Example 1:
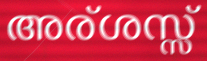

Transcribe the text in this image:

അര്ശസ്സ്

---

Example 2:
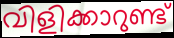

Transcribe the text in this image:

വിളിക്കാറുണ്ട്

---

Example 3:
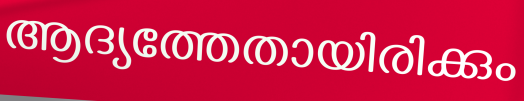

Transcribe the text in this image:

ആദ്യത്തേതായിരിക്കും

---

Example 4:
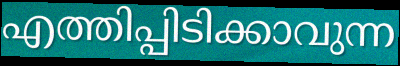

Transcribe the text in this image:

എത്തിപ്പിടിക്കാവുന്ന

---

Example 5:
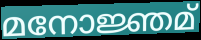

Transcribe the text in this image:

മനോജ്ഞമ്